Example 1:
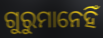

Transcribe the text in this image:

ଗୁରୁମାନେହିଁ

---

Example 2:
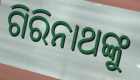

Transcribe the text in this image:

ଗିରିନାଥଙ୍କୁ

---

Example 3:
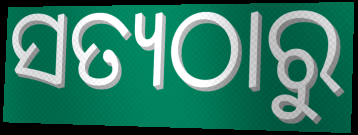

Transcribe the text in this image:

ସତ୍ୟଠାରୁ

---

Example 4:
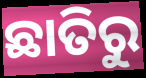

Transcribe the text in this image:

ଛାତିରୁ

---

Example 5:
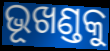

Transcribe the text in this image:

ଭୂଖଣ୍ଡକୁ